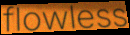
flowless